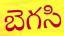
బెగసి